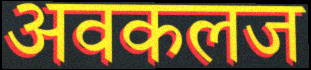
अवकलज